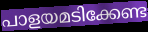
പാളയമടിക്കേണ്ട